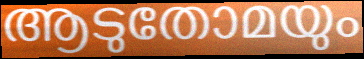
ആടുതോമയും